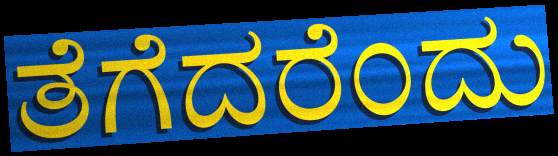
ತೆಗೆದರೆಂದು